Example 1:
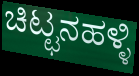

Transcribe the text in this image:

ಚಿಟ್ಟನಹಳ್ಳಿ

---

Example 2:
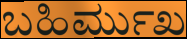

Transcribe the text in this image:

ಬಹಿರ್ಮುಖ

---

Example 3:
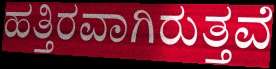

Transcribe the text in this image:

ಹತ್ತಿರವಾಗಿರುತ್ತವೆ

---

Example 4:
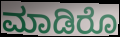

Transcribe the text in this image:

ಮಾಡಿರೊ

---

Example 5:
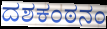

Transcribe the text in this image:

ದಶಕಂಠನಂ